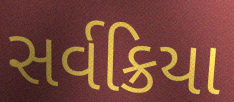
સર્વક્રિયા